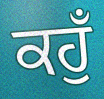
ਕਹੁਁ